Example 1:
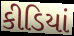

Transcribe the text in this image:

કીડિયાં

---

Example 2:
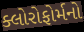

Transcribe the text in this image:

ક્લોરોફોર્મનો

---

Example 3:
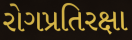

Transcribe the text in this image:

રોગપ્રતિરક્ષા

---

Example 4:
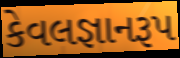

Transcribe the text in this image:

કેવલજ્ઞાનરૂપ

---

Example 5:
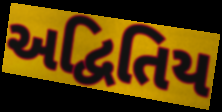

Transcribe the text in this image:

અદ્વિતિય